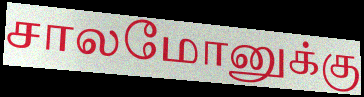
சாலமோனுக்கு